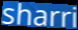
sharri